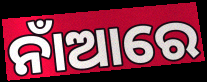
ନାଁଆରେ